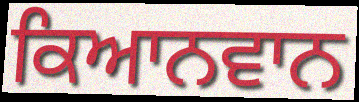
ਕਿਆਨਵਾਨ